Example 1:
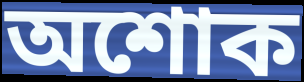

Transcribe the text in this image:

অশোক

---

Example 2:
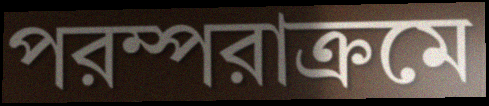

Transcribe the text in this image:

পরম্পরাক্রমে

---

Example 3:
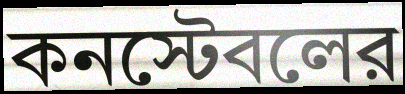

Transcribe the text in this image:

কনস্টেবলের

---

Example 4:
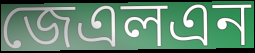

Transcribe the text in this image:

জেএলএন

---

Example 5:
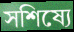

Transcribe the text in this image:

সশিষ্যে